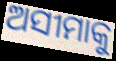
ଅସୀମାକୁ